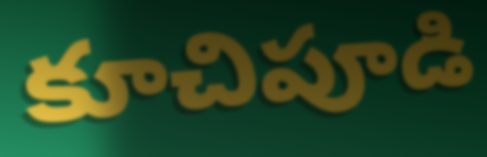
కూచిపూడి